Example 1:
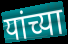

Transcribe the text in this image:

यांच्‍या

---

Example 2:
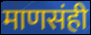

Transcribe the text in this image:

माणसंही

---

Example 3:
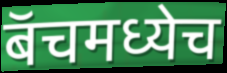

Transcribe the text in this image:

बॅचमध्येच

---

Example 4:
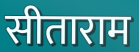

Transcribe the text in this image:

सीताराम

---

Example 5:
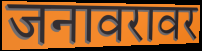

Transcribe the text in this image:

जनावरावर